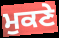
ਮੁਕਣੇ